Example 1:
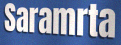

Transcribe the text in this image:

Saramrta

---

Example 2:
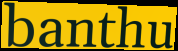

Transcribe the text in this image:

banthu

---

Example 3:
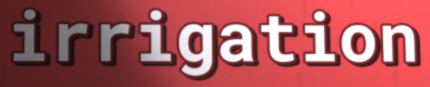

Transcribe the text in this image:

irrigation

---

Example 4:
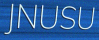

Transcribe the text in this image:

JNUSU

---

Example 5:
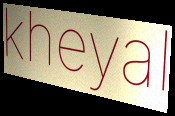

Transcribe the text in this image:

kheyal